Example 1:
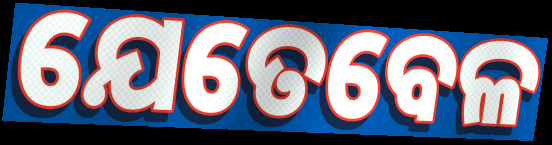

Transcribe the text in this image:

ଯେତେବେଳ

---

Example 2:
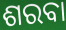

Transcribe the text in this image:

ଶରବା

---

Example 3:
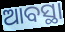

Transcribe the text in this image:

ଆବସ୍ଥା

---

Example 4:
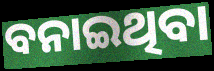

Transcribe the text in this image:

ବନାଇଥିବା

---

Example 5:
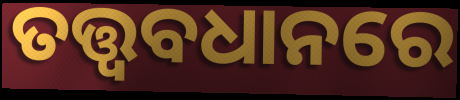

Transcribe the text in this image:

ତତ୍ତ୍ୱବଧାନରେ